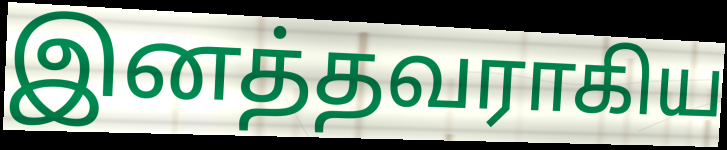
இனத்தவராகிய